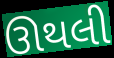
ઊથલી